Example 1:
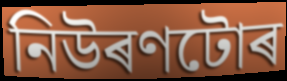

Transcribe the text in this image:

নিউৰণটোৰ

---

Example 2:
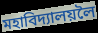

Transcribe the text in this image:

মহাবিদ্যালয়লৈ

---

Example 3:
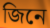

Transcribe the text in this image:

জিনে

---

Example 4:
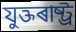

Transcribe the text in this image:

যুক্তৰাষ্ট্ৰ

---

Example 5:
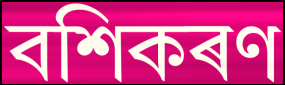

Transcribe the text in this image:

বশিকৰণ